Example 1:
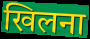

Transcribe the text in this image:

खिलना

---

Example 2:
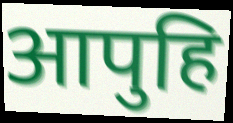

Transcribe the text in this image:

आपुहि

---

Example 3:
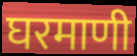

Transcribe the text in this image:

घरमाणी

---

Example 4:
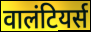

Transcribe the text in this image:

वालंटियर्स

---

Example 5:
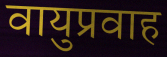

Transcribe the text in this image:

वायुप्रवाह